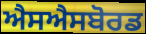
ਐਸਐਸਬੋਰਡ